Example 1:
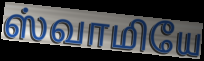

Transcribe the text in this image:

ஸ்வாமியே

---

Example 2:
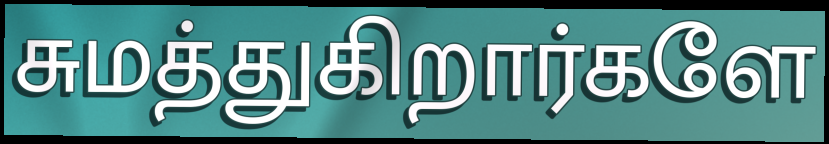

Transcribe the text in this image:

சுமத்துகிறார்களே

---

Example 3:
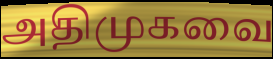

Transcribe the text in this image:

அதிமுகவை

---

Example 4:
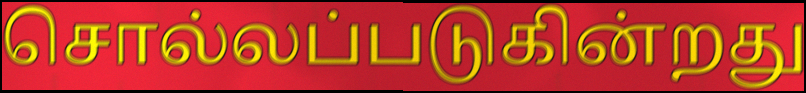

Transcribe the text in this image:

சொல்லப்படுகின்றது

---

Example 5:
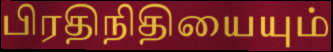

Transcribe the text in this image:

பிரதிநிதியையும்